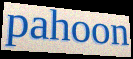
pahoon